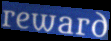
reward